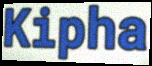
Kipha